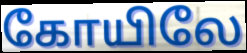
கோயிலே